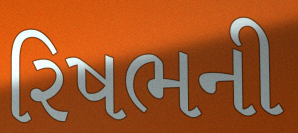
રિષભની